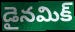
డైనమిక్